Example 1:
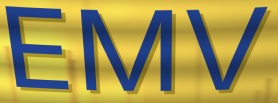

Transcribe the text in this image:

EMV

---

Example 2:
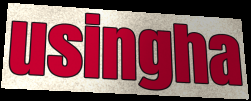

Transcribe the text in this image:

usingha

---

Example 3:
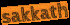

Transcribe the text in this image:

sakkath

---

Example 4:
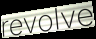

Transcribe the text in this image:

revolve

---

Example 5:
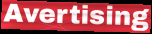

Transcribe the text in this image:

Avertising